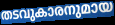
തടവുകാരനുമായ